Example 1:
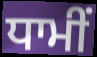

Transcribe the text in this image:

ਧਾਮੀਂ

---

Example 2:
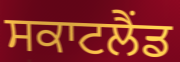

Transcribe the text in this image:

ਸਕਾਟਲੈਂਡ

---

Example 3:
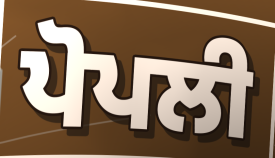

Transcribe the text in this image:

ਪੋਪਲੀ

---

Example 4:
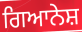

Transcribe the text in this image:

ਗਿਆਨੇਸ਼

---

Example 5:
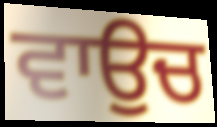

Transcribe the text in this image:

ਵਾਉਚ